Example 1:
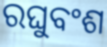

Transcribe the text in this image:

ରଘୁବଂଶ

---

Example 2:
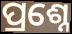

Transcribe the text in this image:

ପ୍ରଶ୍ନେ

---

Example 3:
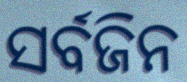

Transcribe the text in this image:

ସର୍ବଜିନ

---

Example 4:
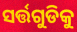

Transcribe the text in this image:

ସର୍ତ୍ତଗୁଡିକୁ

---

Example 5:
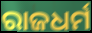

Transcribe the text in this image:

ରାଜଧର୍ମ